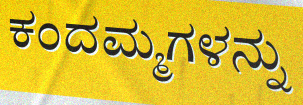
ಕಂದಮ್ಮಗಳನ್ನು